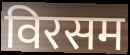
विरसम